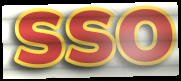
sso